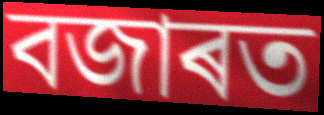
বজাৰত